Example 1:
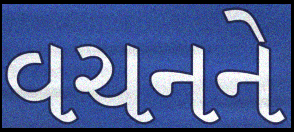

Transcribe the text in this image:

વચનને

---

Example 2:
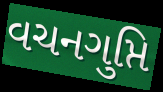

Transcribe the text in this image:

વચનગુપ્તિ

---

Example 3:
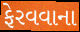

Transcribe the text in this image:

ફેરવવાના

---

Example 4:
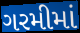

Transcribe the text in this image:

ગરમીમાં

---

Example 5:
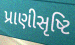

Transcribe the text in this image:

પ્રાણીસૃષ્ટિ